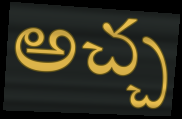
అచ్చ